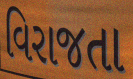
વિરાજતા